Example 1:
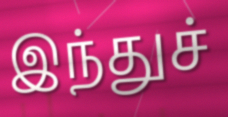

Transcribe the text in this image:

இந்துச்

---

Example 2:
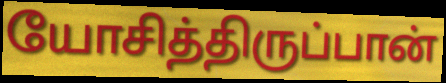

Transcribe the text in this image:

யோசித்திருப்பான்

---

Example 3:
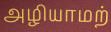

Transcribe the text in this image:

அழியாமற்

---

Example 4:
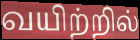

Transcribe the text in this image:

வயிற்றில்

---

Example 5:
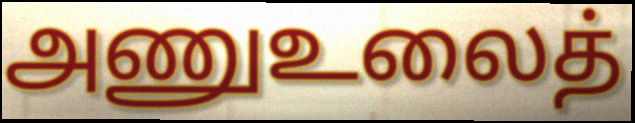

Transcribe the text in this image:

அணுஉலைத்